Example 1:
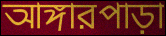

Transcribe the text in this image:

আঙ্গারপাড়া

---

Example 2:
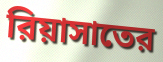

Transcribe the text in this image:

রিয়াসাতের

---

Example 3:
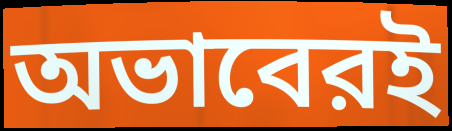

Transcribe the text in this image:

অভাবেরই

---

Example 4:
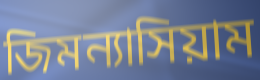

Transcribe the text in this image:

জিমন্যাসিয়াম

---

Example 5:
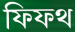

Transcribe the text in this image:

ফিফথ